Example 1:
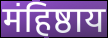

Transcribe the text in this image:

मंहिष्ठाय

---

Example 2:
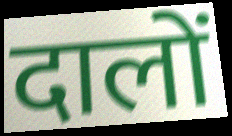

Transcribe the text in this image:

दालों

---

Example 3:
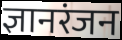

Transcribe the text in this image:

ज्ञानरंजन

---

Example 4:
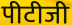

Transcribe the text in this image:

पीटीजी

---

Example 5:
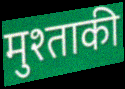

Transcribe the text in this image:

मुश्ताकी